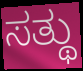
ಸತ್ಥು